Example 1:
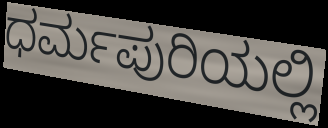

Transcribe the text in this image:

ಧರ್ಮಪುರಿಯಲ್ಲಿ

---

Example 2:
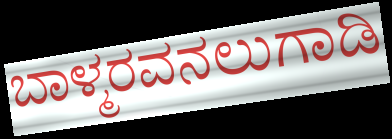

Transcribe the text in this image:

ಬಾಳ್ಮರವನಲುಗಾಡಿ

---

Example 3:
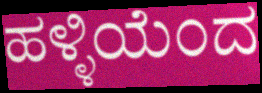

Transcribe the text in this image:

ಹಳ್ಳಿಯೆಂದ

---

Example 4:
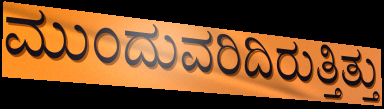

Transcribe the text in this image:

ಮುಂದುವರಿದಿರುತ್ತಿತ್ತು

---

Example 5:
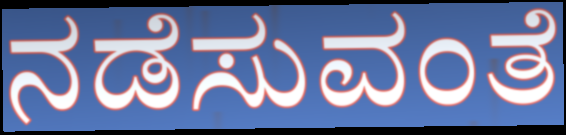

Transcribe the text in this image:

ನಡೆಸುವಂತೆ